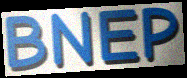
BNEP